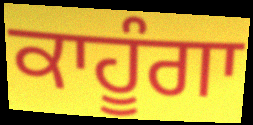
ਕਾਹੂੰਗਾ